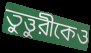
তুত্তুরীকেও